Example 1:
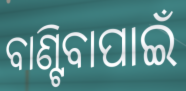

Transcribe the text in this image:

ବାଣ୍ଟିବାପାଇଁ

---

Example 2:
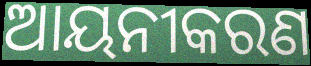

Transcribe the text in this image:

ଆୟନୀକରଣ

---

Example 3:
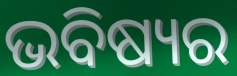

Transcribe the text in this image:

ଭବିଷ୍ୟର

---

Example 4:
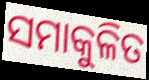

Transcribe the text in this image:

ସମାକୁଳିତ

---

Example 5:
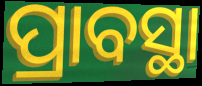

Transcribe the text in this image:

ପ୍ରାବସ୍ଥା